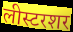
लीस्टरशर